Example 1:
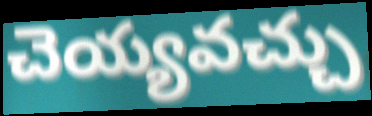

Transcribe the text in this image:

చెయ్యవచ్చు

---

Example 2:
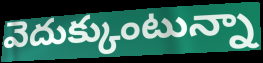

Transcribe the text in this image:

వెదుక్కుంటున్నా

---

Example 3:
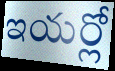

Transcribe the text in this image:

ఇయర్లో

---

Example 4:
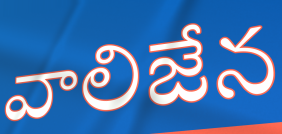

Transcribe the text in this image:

వాలిజేన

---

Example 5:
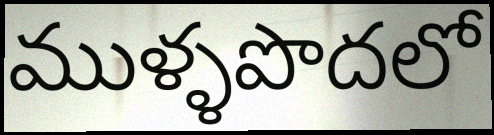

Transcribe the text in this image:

ముళ్ళపొదలో